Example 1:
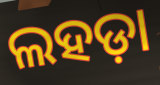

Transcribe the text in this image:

ଲହଡ଼ା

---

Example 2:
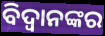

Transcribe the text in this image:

ବିଦ୍ୱାନଙ୍କର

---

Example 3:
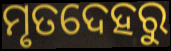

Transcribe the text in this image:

ମୃତଦେହରୁ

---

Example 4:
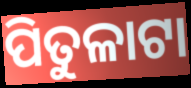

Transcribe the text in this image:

ପିତୁଳାଟା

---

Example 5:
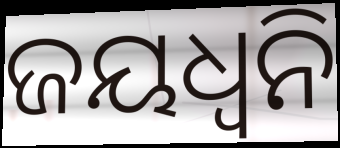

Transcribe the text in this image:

ଜୟଧ୍ଵନି